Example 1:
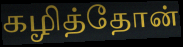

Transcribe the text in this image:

கழித்தோன்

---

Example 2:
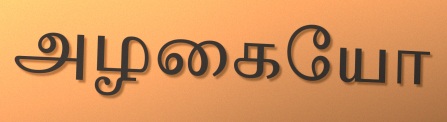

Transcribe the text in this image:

அழகையோ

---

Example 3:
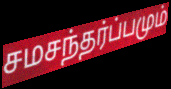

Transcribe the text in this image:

சமசந்தர்ப்பமும்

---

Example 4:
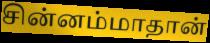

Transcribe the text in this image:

சின்னம்மாதான்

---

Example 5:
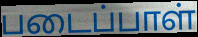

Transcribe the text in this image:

படைப்பாள்